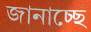
জানাচ্ছে